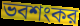
ভবশংকর